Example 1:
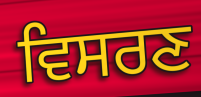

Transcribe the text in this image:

ਵਿਸਰਣ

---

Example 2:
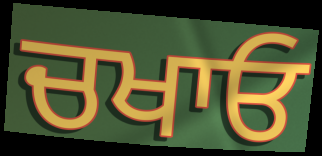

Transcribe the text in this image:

ਚਖਾਓ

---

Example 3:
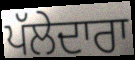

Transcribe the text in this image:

ਪੱਲੇਦਾਰਾ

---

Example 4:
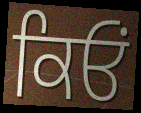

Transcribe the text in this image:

ਕਿਓਂ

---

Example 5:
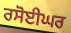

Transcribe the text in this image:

ਰਸੋਈਘਰ